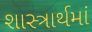
શાસ્ત્રાર્થમાં